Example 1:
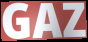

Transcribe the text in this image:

GAZ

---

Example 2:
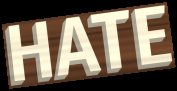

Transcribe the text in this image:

HATE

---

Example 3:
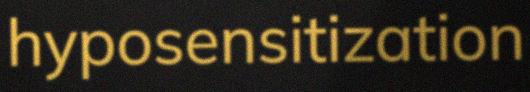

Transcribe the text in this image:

hyposensitization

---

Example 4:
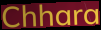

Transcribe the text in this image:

Chhara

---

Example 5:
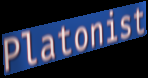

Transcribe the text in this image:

Platonist